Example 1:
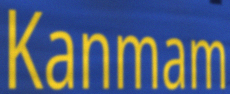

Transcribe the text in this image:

Kanmam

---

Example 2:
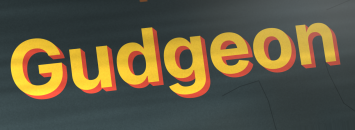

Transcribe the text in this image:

Gudgeon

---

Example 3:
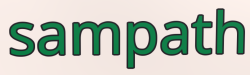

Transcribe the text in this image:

sampath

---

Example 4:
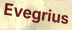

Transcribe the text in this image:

Evegrius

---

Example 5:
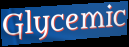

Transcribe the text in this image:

Glycemic